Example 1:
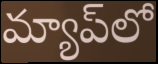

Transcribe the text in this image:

మ్యాప్‌లో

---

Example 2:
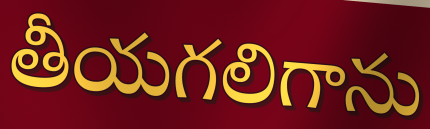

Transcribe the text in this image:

తీయగలిగాను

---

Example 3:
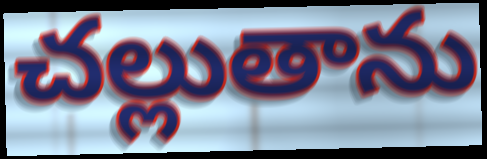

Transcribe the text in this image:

చల్లుతాను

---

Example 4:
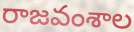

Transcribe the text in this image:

రాజవంశాల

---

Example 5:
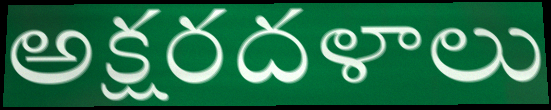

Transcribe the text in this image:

అక్షరదళాలు